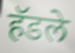
हॅडले